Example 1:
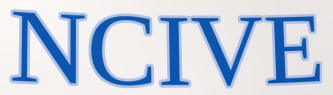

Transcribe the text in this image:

NCIVE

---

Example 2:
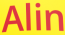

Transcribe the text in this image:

Alin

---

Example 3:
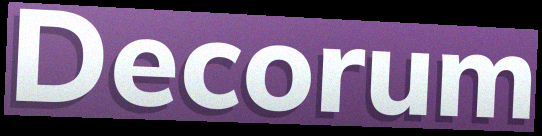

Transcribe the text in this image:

Decorum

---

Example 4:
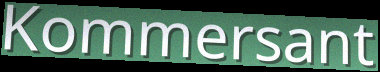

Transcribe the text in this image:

Kommersant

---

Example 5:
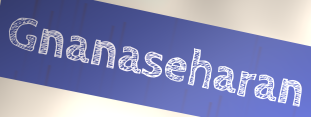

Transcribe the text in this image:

Gnanaseharan